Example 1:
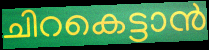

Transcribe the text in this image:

ചിറകെട്ടാൻ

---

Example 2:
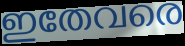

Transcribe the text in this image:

ഇതേവരെ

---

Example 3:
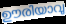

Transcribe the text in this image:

ഊരിയാവു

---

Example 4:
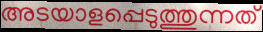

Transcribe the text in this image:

അടയാളപ്പെടുത്തുന്നത്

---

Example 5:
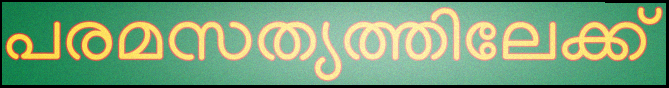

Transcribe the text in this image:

പരമസത്യത്തിലേക്ക്